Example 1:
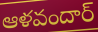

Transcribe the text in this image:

ఆళవందార్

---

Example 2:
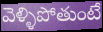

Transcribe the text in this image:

వెళ్ళిపోతుంటే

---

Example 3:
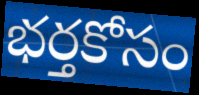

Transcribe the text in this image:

భర్తకోసం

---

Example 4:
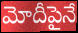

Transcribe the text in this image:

మోదీపైనే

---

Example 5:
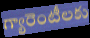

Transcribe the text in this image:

గ్యారెంటీలకు